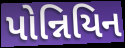
પોન્નિયિન